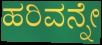
ಹರಿವನ್ನೇ